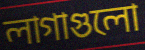
লাগাগুলো